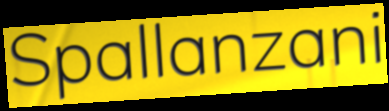
Spallanzani